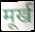
मूर्ख